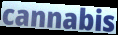
cannabis